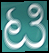
ಟಿ